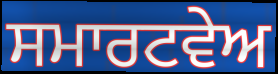
ਸਮਾਰਟਵੇਅ